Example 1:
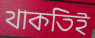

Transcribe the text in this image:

থাকতিই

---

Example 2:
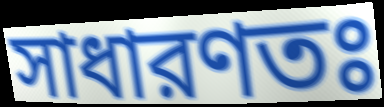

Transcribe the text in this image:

সাধারণতঃ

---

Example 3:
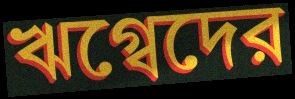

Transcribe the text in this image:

ঋগ্বেদের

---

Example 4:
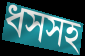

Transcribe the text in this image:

ধসসহ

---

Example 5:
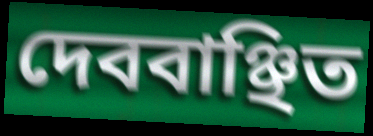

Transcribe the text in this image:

দেববাঞ্ছিত